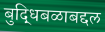
बुद्धिबळाबद्दल